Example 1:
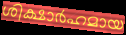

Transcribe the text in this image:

ശിക്ഷാർഹമായ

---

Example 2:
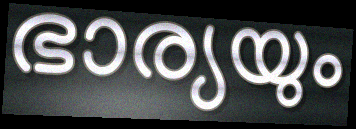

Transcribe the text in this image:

ഭാര്യയും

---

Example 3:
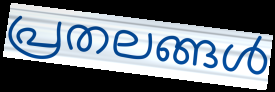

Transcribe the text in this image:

പ്രതലങ്ങൾ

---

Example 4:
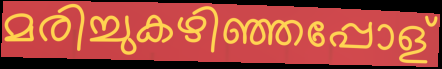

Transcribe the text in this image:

മരിച്ചുകഴിഞ്ഞപ്പോള്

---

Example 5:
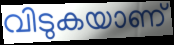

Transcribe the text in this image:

വിടുകയാണ്